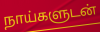
நாய்களுடன்